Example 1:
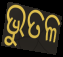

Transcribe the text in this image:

ଭୁତଳ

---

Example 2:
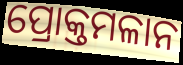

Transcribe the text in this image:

ପ୍ରୋକ୍ତମଳାନ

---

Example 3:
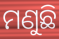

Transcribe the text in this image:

ମଣୁଛି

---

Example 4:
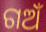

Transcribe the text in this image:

ଗଅଁ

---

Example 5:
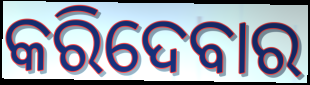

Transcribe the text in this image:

କରିଦେବାର